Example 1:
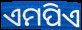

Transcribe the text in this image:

ଏମପିଏ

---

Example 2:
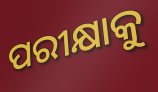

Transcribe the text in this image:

ପରୀକ୍ଷାକୁ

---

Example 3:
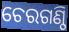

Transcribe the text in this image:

ଚେରଗଣ୍ଠି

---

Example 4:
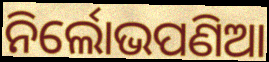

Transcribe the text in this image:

ନିର୍ଲୋଭପଣିଆ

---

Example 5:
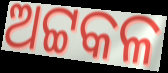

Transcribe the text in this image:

ଅଟ୍ଟକଳ